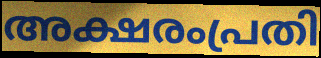
അക്ഷരംപ്രതി